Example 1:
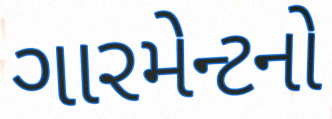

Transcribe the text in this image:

ગારમેન્ટનો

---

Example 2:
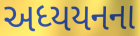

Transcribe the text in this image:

અધ્યયનના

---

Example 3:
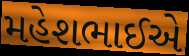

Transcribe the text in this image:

મહેશભાઈએ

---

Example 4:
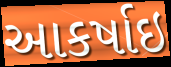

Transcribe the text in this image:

આકર્ષાઇ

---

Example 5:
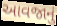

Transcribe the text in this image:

આવજાનું